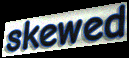
skewed